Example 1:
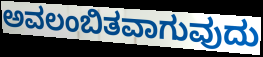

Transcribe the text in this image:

ಅವಲಂಬಿತವಾಗುವುದು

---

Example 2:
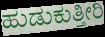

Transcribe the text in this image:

ಹುಡುಕುತ್ತೀರಿ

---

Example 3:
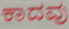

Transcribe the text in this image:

ಕಾದವು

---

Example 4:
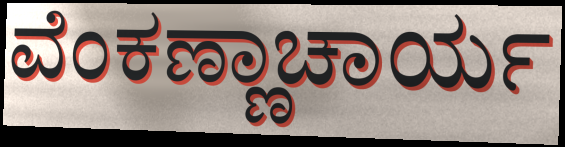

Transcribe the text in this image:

ವೆಂಕಣ್ಣಾಚಾರ್ಯ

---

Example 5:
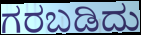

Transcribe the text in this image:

ಗರಬಡಿದು